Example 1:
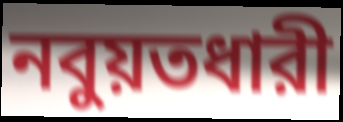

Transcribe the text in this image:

নবুয়তধারী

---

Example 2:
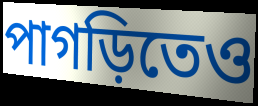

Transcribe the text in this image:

পাগড়িতেও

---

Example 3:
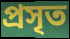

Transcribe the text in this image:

প্রসৃত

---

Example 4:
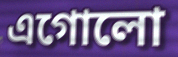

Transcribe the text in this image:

এগোলো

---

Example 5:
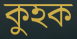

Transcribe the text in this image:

কুহক